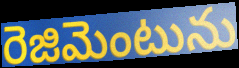
రెజిమెంటును